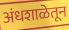
अंधशाळेतून